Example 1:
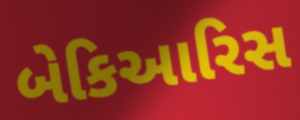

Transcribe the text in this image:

બેકિઆરિસ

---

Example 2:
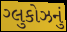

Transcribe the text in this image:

ગ્લુકોઝનું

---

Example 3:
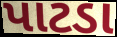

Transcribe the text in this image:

પાટડા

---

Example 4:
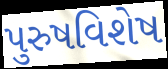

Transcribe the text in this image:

પુરુષવિશેષ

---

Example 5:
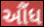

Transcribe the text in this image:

ઔંધ